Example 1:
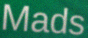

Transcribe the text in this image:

Mads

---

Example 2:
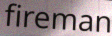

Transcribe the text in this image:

fireman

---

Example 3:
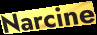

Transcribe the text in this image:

Narcine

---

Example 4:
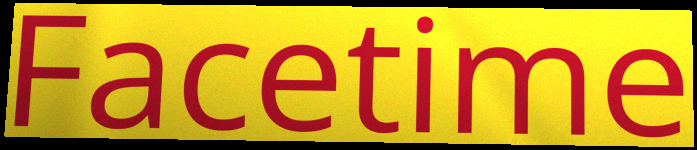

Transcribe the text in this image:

Facetime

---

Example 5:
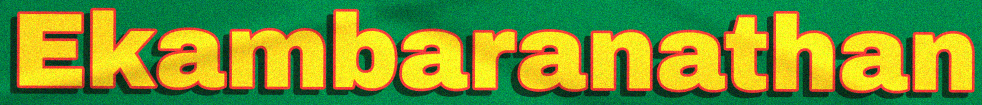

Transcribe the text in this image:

Ekambaranathan